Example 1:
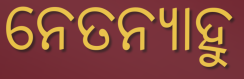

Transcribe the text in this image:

ନେତନ୍ୟାହୁ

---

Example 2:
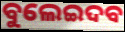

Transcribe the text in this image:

ବୁଲେଇଦବ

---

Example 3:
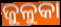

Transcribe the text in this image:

ଜୁଳୁକା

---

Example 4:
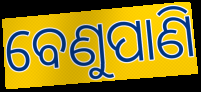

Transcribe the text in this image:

ବେଣୁପାଣି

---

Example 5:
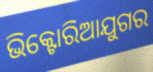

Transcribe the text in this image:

ଭିକ୍ଟୋରିଆଯୁଗର